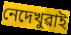
নেদেখুৱাই